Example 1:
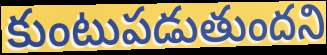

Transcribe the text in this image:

కుంటుపడుతుందని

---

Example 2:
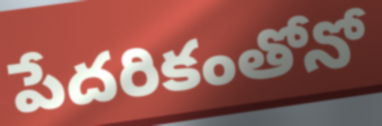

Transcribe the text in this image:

పేదరికంతోనో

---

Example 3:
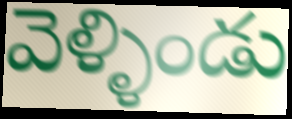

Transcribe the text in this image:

వెళ్ళిండు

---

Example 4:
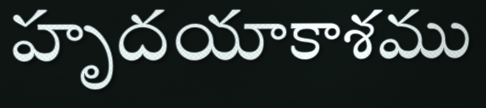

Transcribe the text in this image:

హృదయాకాశము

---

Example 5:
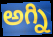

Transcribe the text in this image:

అగ్ని